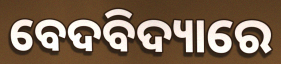
ବେଦବିଦ୍ୟାରେ